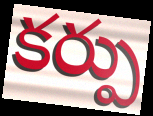
కర్పు